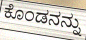
ಕೊಂಡನನ್ನು